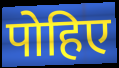
पोहिए